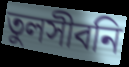
তুলসীবনি